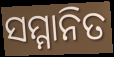
ସମ୍ମାନିତ